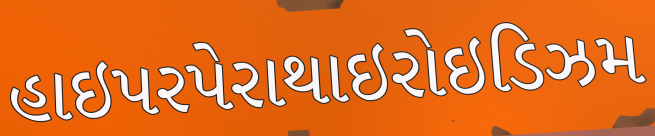
હાઇપરપેરાથાઇરોઇડિઝમ